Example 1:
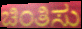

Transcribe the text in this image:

ಚಿಂತಿಸು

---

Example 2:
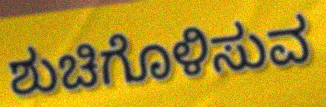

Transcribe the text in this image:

ಶುಚಿಗೊಳಿಸುವ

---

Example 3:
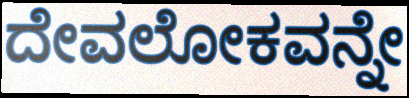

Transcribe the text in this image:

ದೇವಲೋಕವನ್ನೇ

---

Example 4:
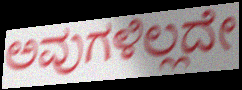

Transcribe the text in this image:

ಅವುಗಳಿಲ್ಲದೇ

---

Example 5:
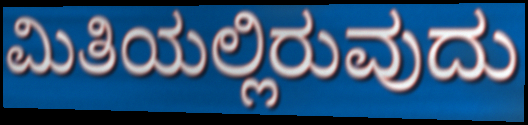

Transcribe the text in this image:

ಮಿತಿಯಲ್ಲಿರುವುದು